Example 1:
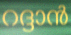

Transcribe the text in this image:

റദ്ദാൻ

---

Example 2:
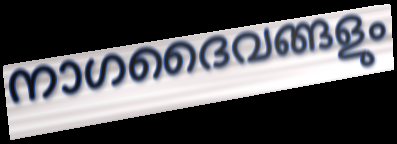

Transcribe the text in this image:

നാഗദൈവങ്ങളും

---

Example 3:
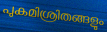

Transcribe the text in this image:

പുകമിശ്രിതങ്ങളും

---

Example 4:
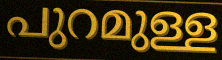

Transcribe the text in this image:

പുറമുള്ള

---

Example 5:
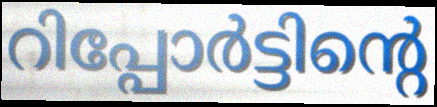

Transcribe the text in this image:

റിപ്പോർട്ടിന്റെ